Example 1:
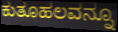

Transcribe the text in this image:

ಕುತೂಹಲವನ್ನೂ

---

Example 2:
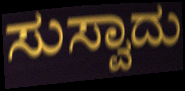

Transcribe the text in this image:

ಸುಸ್ವಾದು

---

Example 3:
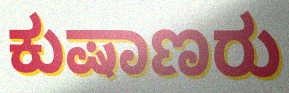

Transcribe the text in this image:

ಕುಷಾಣರು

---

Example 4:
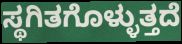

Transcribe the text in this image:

ಸ್ಥಗಿತಗೊಳ್ಳುತ್ತದೆ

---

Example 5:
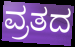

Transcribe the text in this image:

ವ್ರತದ